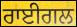
ਰਾਈਗਲ